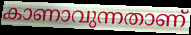
കാണാവുന്നതാണ്